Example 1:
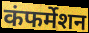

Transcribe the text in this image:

कंफर्मेशन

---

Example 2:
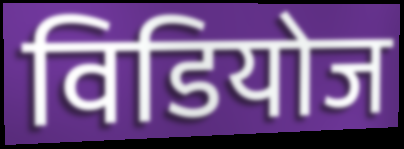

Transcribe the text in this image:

विडियोज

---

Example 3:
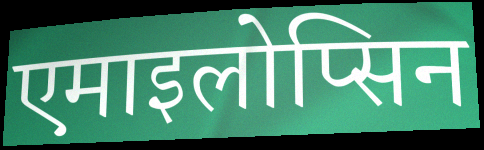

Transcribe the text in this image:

एमाइलोप्सिन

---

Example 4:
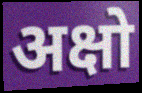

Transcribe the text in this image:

अक्षो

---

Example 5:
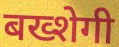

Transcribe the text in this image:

बख्शेगी